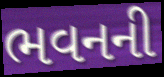
ભવનની